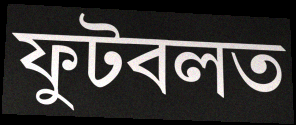
ফুটবলত